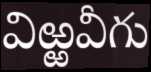
విఱ్ఱవీగు